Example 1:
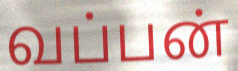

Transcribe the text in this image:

வப்பன்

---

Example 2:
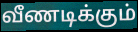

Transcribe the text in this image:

வீணடிக்கும்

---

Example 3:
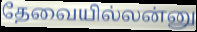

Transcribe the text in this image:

தேவையில்லன்னு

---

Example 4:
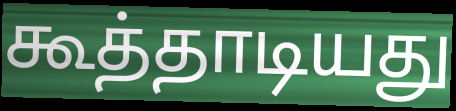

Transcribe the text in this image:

கூத்தாடியது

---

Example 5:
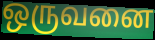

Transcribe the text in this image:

ஒருவனை